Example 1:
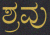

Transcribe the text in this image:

ಶ್ರವು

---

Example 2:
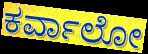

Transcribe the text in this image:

ಕರ್ವಾಲೋ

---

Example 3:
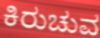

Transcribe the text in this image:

ಕಿರುಚುವ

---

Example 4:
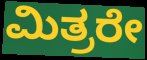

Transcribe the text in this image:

ಮಿತ್ರರೇ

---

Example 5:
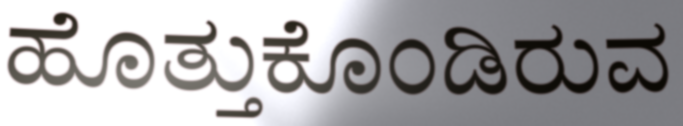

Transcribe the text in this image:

ಹೊತ್ತುಕೊಂಡಿರುವ